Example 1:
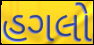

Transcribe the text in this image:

હગલો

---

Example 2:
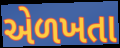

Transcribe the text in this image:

એળખતા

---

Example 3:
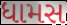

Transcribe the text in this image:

ધામસ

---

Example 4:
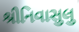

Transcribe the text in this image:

શ્રીનિવાસુલુ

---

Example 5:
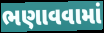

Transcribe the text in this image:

ભણાવવામાં